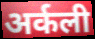
अर्कली